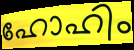
ഹോഹിം